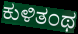
ಕುಳಿತಂಥ